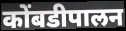
कोंबडीपालन